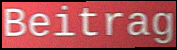
Beitrag